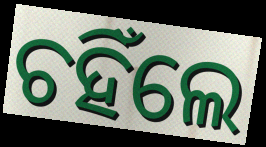
ଚହିଁଲେ